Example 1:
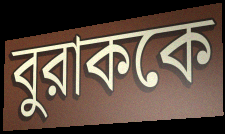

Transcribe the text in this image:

বুরাককে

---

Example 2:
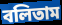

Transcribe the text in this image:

বলিতাম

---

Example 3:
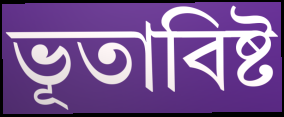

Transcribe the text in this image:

ভূতাবিষ্ট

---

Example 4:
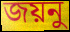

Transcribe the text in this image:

জয়নু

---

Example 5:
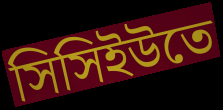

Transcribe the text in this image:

সিসিইউতে